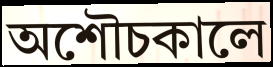
অশৌচকালে